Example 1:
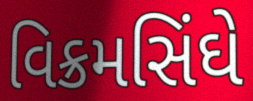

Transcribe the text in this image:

વિક્રમસિંઘે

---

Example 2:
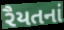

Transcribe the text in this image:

રૈયતનાં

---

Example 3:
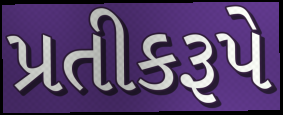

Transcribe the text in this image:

પ્રતીકરૂપે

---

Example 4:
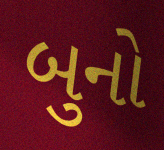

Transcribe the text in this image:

બુનો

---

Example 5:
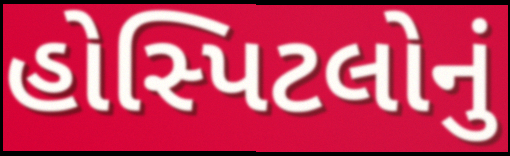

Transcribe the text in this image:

હોસ્પિટલોનું